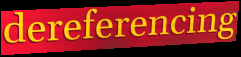
dereferencing